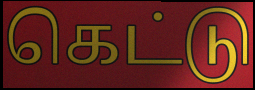
கெட்டு